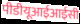
पीडीयूआईआईसी